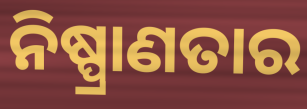
ନିଷ୍ପ୍ରାଣତାର